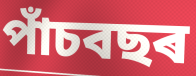
পাঁচবছৰ